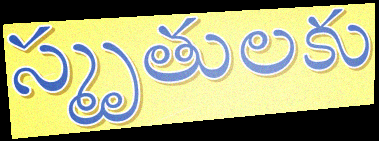
స్మృతులకు